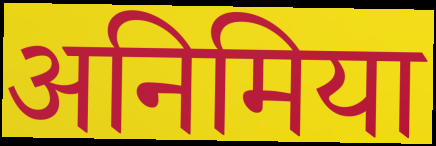
अनिमिया